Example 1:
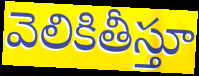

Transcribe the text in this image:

వెలికితీస్తూ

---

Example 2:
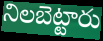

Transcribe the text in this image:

నిలబెట్టారు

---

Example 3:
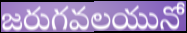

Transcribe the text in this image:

జరుగవలయునో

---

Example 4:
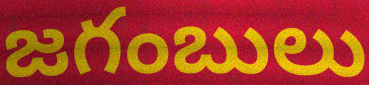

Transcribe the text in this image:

జగంబులు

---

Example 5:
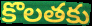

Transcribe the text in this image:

కొలతకు